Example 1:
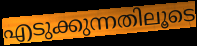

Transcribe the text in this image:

എടുക്കുന്നതിലൂടെ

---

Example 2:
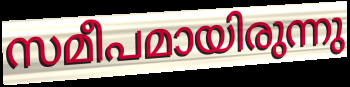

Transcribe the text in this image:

സമീപമായിരുന്നു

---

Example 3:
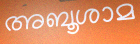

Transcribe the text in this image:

അബൂശാമ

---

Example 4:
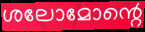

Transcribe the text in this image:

ശലോമോന്റെ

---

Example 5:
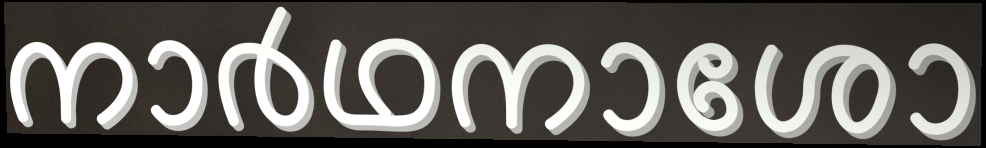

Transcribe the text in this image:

നാർഥനാശോ